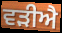
ਵੜੀਐ